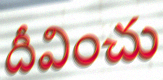
దీవించు